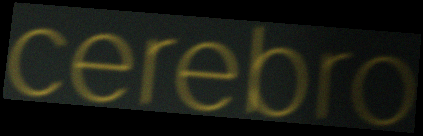
cerebro